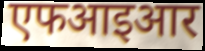
एफआइआर